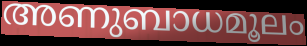
അണുബാധമൂലം